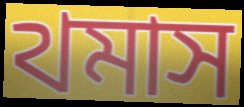
থমাস